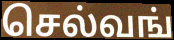
செல்வங்